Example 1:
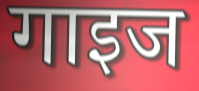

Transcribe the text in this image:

गाइज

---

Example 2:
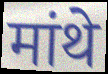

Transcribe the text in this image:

मांथे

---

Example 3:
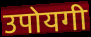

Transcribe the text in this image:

उपोयगी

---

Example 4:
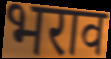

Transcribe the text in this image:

भराव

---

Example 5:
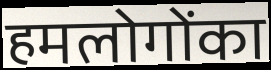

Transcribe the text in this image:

हमलोगोंका